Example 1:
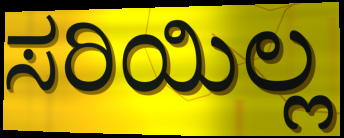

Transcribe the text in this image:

ಸರಿಯಿಲ್ಲ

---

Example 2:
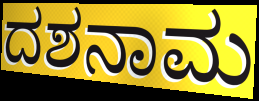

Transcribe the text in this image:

ದಶನಾಮ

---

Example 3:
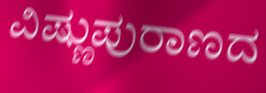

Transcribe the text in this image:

ವಿಷ್ಣುಪುರಾಣದ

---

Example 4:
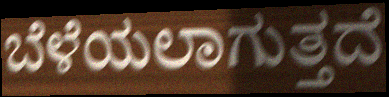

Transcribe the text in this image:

ಬೆಳೆಯಲಾಗುತ್ತದೆ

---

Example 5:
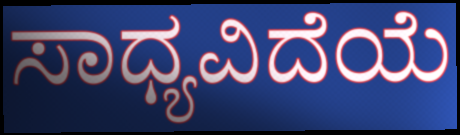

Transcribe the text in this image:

ಸಾಧ್ಯವಿದೆಯೆ